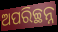
ଅପରିଚ୍ଛନ୍ନ